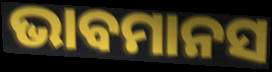
ଭାବମାନସ